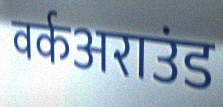
वर्कअराउंड